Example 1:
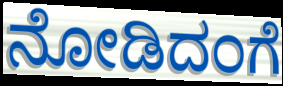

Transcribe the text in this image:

ನೋಡಿದಂಗೆ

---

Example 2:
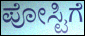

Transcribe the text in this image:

ಪೋಸ್ಟಿಗೆ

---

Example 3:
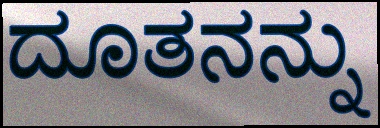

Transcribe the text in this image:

ದೂತನನ್ನು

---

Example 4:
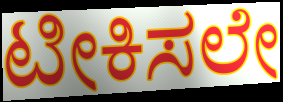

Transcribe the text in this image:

ಟೀಕಿಸಲೇ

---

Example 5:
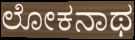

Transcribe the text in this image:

ಲೋಕನಾಥ